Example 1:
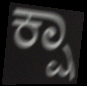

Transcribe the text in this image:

ಕ್ಷಾ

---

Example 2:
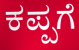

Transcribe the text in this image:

ಕಪ್ಪಗೆ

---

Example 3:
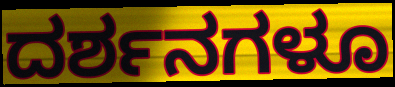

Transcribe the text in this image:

ದರ್ಶನಗಳೂ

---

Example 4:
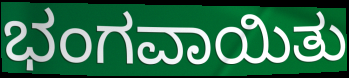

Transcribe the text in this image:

ಭಂಗವಾಯಿತು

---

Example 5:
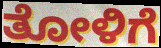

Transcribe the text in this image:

ತೋಳಿಗೆ